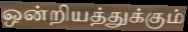
ஒன்றியத்துக்கும்